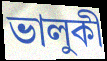
ভালুকী